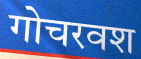
गोचरवश